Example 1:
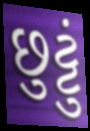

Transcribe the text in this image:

છુટ્ટું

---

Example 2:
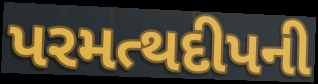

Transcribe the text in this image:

પરમત્થદીપની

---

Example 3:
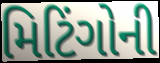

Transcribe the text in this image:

મિટિંગોની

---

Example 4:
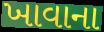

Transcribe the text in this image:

ખાવાના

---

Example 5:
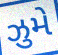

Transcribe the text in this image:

ઝુમે